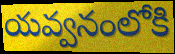
యవ్వనంలోకి